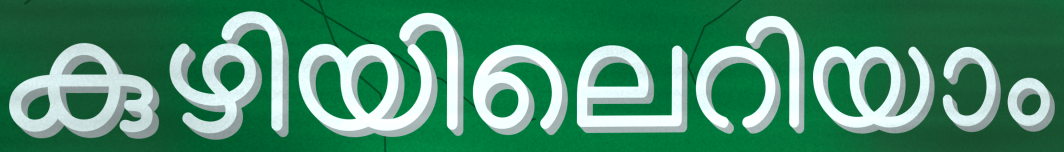
കുഴിയിലെറിയാം